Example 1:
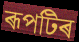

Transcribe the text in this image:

ৰূপটিৰ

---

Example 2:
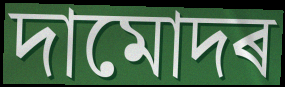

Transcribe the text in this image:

দামোদৰ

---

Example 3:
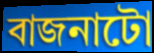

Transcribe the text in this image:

বাজনাটো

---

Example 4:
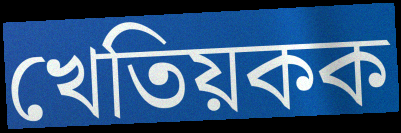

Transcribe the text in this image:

খেতিয়কক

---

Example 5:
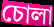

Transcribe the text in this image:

চোলা